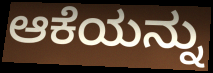
ಆಕೆಯನ್ನು